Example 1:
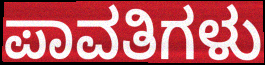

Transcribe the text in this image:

ಪಾವತಿಗಳು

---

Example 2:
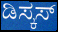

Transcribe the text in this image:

ಡಿಸ್ಕಸ್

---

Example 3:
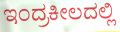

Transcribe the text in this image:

ಇಂದ್ರಕೀಲದಲ್ಲಿ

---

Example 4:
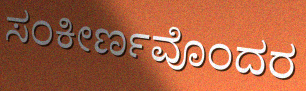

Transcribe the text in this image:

ಸಂಕೀರ್ಣವೊಂದರ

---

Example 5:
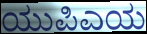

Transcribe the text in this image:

ಯುಪಿಎಯ